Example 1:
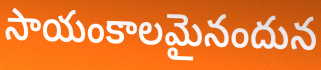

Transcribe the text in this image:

సాయంకాలమైనందున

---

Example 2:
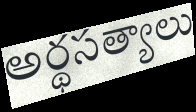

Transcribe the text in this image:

అర్థసత్యాలు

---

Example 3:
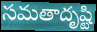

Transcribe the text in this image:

సమతాదృష్టి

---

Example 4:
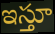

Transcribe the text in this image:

ఇస్తూ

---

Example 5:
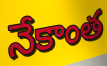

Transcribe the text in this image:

నేకాంత